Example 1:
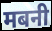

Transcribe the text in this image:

मबनी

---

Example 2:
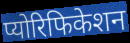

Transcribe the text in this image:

प्योरिफिकेशन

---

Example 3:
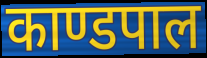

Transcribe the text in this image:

काण्डपाल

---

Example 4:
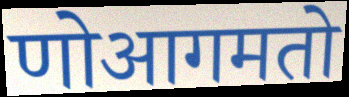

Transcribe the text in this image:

णोआगमतो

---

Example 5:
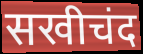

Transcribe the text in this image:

सखीचंद